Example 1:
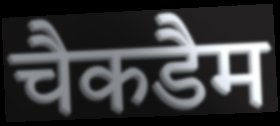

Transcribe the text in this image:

चैकडैम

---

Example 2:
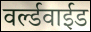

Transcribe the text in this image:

वर्ल्डवाईड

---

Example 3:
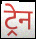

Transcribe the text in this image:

ट्रेन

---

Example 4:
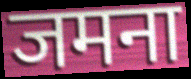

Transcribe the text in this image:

जमना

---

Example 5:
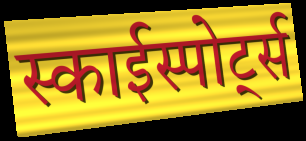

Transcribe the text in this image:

स्काईस्पोर्ट्स